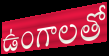
ఉంగాలతో